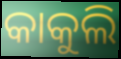
କାକୁଲି